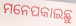
ମନେପକାଇଛୁ